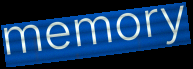
memory